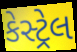
કેસ્ટ્રેલ